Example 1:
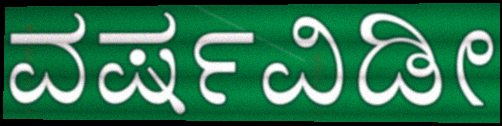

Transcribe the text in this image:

ವರ್ಷವಿಡೀ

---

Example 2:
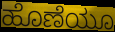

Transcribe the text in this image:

ಹೊಣೆಯೂ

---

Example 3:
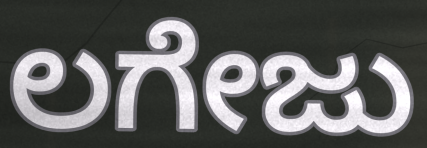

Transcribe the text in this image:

ಲಗೇಜು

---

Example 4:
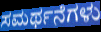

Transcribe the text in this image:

ಸಮರ್ಥನೆಗಳು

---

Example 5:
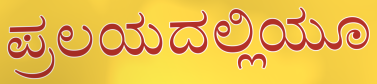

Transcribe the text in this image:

ಪ್ರಲಯದಲ್ಲಿಯೂ